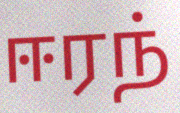
ஈரந்